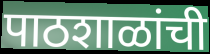
पाठशाळांची